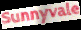
Sunnyvale